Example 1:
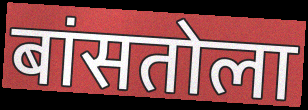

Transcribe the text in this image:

बांसतोला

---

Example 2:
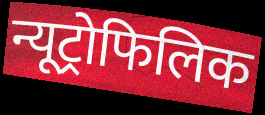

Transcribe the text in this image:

न्यूट्रोफिलिक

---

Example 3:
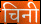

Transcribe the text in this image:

चिनी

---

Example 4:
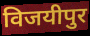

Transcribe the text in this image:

विजयीपुर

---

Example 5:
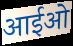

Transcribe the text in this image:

आईओ